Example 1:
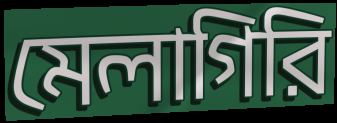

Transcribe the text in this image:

মেলাগিরি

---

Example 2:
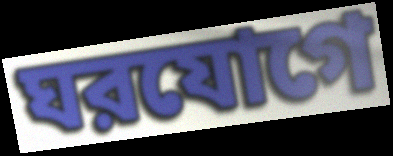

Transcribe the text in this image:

ঘরযোগে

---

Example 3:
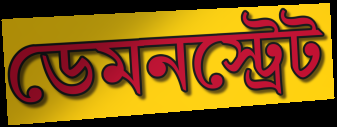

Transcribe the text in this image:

ডেমনস্ট্রেট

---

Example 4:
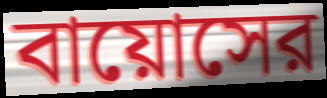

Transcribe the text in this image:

বায়োসের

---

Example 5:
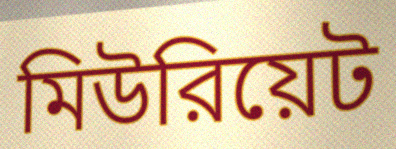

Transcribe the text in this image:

মিউরিয়েট